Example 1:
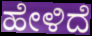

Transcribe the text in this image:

ಹೇಳಿದೆ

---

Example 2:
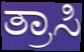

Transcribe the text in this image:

ತ್ರಾಸಿ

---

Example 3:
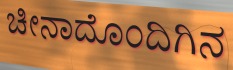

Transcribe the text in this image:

ಚೀನಾದೊಂದಿಗಿನ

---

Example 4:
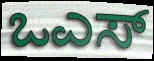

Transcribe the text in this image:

ಒಎಸ್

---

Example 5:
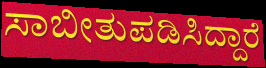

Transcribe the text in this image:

ಸಾಬೀತುಪಡಿಸಿದ್ದಾರೆ